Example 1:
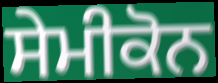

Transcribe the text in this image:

ਸੇਮੀਕੋਨ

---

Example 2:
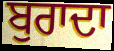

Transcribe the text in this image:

ਬੁਰਾਦਾ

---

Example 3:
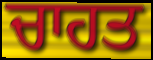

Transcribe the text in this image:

ਚਾਹਤ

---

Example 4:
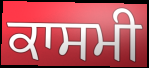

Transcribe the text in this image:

ਕਾਸਮੀ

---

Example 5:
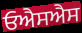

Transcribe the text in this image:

ਓਐਸਐਸ